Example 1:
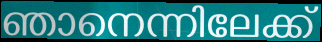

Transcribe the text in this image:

ഞാനെന്നിലേക്ക്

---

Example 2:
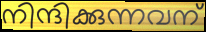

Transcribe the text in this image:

നിന്ദിക്കുന്നവന്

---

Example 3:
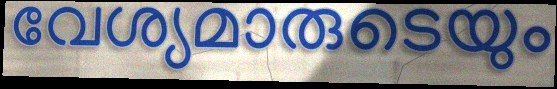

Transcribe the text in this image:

വേശ്യമാരുടെയും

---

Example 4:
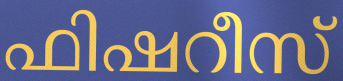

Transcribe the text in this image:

ഫിഷറീസ്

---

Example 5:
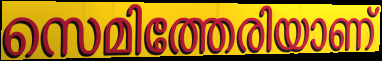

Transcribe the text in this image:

സെമിത്തേരിയാണ്